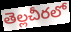
తెల్లచీరలో